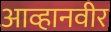
आव्हानवीर